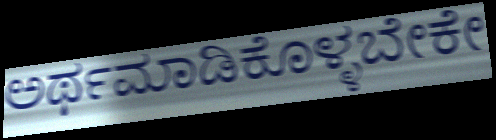
ಅರ್ಥಮಾಡಿಕೊಳ್ಳಬೇಕೇ